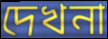
দেখনা